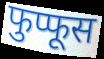
फुप्फूस